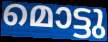
മൊട്ടു